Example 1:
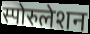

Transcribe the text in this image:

स्पोरुलेशन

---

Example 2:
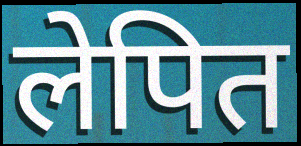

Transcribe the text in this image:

लेपित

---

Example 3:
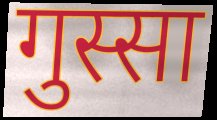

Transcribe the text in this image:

गुस्सा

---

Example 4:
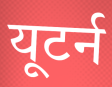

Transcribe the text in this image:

यूटर्न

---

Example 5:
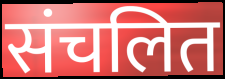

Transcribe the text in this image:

संचलित